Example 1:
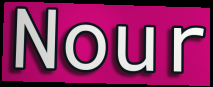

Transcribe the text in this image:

Nour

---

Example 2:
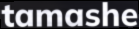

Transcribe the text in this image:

tamashe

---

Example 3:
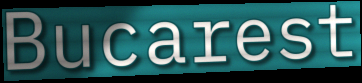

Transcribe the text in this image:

Bucarest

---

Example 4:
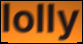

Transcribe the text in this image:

lolly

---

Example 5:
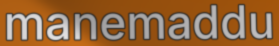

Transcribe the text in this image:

manemaddu